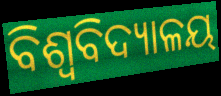
ବିଶ୍ଵବିଦ୍ୟାଳୟ